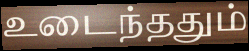
உடைந்ததும்